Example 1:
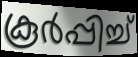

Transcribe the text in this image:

കൂർപ്പിച്ച്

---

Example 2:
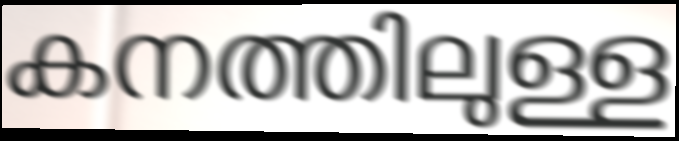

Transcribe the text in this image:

കനത്തിലുള്ള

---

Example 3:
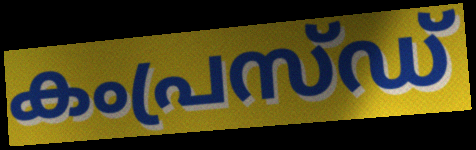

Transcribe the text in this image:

കംപ്രസ്ഡ്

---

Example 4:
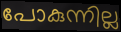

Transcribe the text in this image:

പോകുന്നില്ല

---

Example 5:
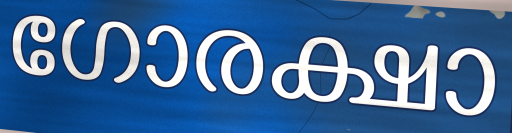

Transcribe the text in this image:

ഗോരക്ഷാ